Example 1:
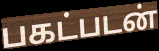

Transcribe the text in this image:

பகட்படன்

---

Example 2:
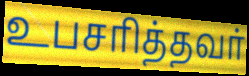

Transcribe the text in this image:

உபசரித்தவர்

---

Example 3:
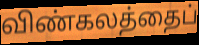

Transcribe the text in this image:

விண்கலத்தைப்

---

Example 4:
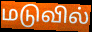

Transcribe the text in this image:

மடுவில்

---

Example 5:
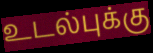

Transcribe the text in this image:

உடல்புக்கு